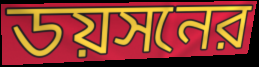
ডয়সনের